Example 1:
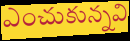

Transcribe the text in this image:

ఎంచుకున్నవి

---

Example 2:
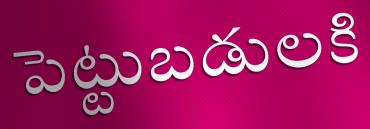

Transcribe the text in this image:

పెట్టుబడులకి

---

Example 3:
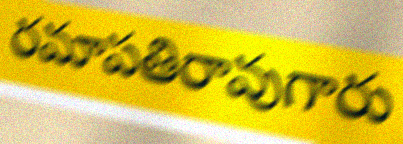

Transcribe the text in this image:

రమాపతిరావుగారు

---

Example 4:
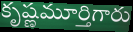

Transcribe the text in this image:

కృష్ణమూర్తిగారు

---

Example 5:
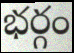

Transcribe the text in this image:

భర్గం